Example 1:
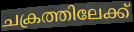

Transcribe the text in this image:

ചക്രത്തിലേക്ക്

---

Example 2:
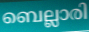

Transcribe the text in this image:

ബെല്ലാരി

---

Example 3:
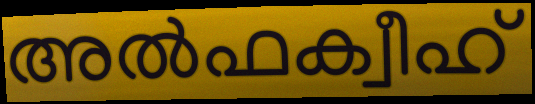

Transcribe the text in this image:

അൽഫക്വീഹ്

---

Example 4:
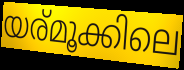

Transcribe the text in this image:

യര്മൂക്കിലെ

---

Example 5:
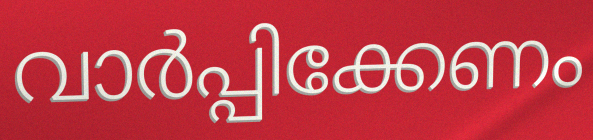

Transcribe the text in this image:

വാർപ്പിക്കേണം